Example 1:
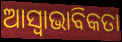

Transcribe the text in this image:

ଆସ୍ବାଭାବିକତା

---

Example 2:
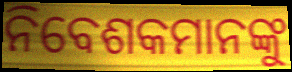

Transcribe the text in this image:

ନିବେଶକମାନଙ୍କୁ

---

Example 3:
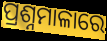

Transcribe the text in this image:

ପ୍ରଶ୍ନମାଳାରେ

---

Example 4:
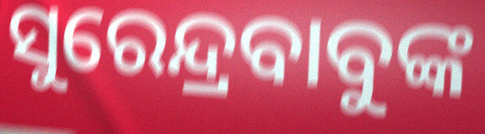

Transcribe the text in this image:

ସୁରେନ୍ଦ୍ରବାବୁଙ୍କ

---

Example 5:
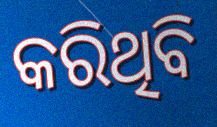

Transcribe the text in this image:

କରିଥିବି